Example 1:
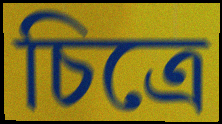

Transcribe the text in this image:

চিত্রে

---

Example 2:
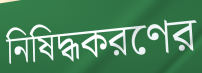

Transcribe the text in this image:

নিষিদ্ধকরণের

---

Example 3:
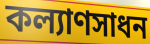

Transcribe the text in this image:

কল্যাণসাধন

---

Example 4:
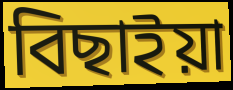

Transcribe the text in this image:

বিছাইয়া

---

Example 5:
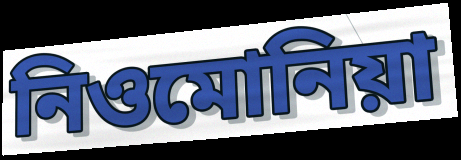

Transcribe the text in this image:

নিওমোনিয়া